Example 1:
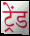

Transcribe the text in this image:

ट्रेंड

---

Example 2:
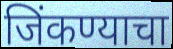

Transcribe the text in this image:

जिंकण्याचा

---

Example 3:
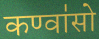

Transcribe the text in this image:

कण्वा॑सो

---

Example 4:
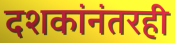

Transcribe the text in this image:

दशकांनंतरही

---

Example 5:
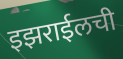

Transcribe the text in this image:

इझराईलची